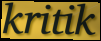
kritik